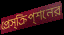
প্রেস্‌ক্রিপ্‌শনের